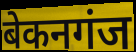
बेकनगंज